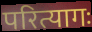
परित्यागः